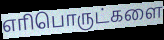
எரிபொருட்களை